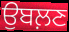
ਉਬਲ਼ਣ